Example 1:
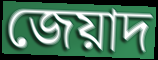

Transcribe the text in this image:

জেয়াদ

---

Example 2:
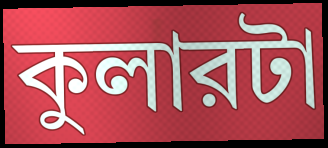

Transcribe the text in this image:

কুলারটা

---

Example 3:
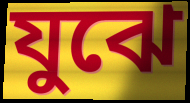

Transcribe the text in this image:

যুঝে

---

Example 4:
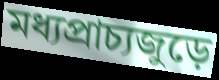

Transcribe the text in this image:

মধ্যপ্রাচ্যজুড়ে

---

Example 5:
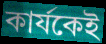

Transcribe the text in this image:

কার্যকেই